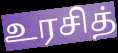
உரசித்